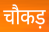
चौकड़